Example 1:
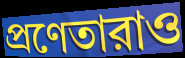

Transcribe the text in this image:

প্রণেতারাও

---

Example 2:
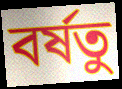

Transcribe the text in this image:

বর্ষতু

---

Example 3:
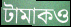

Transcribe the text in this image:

টামাকও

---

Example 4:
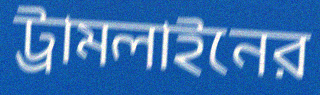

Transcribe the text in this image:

ট্রামলাইনের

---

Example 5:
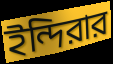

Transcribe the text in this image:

ইন্দিরার